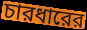
চারধারের